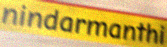
nindarmanthi